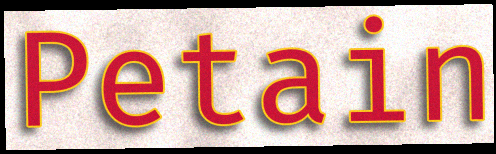
Petain